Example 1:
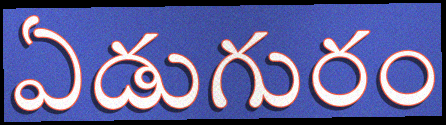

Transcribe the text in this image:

ఏడుగురం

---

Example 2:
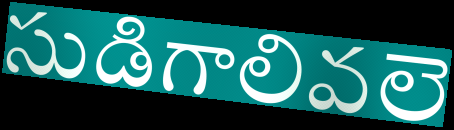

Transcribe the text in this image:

సుడిగాలివలె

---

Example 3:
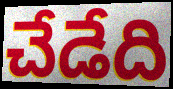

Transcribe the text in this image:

చేడేది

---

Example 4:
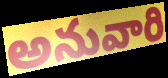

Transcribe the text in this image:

అనువారి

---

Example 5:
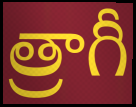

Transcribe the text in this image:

త్రాగీ